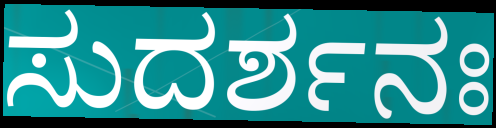
ಸುದರ್ಶನಃ